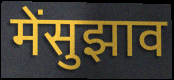
मेंसुझाव